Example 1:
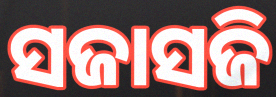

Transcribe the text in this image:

ସଜାସଜି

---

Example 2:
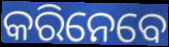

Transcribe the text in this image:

କରିନେବେ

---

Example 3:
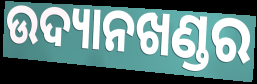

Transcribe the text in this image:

ଉଦ୍ୟାନଖଣ୍ଡର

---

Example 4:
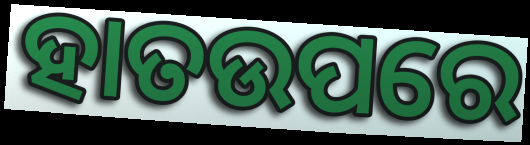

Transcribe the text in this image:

ହାତଉପରେ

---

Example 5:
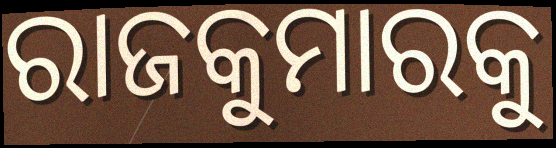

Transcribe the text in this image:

ରାଜକୁମାରକୁ